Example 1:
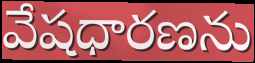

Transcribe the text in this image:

వేషధారణను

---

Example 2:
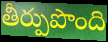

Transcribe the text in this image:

తీర్పుపొంది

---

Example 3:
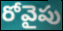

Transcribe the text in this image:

రోవైపు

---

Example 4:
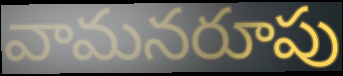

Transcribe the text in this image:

వామనరూపు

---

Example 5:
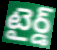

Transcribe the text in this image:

టైర్డ్